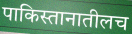
पाकिस्तानातीलच